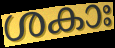
ശകാഃ